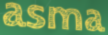
asma